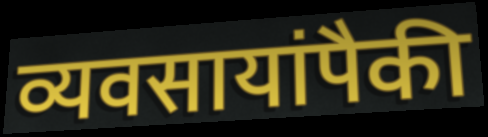
व्यवसायांपैकी